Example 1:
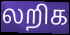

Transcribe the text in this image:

லறிக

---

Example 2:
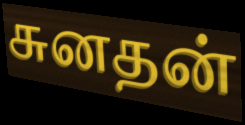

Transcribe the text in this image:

சுனதன்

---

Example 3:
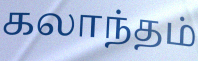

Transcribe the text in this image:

கலாந்தம்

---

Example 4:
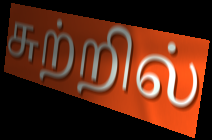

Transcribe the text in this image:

சுற்றில்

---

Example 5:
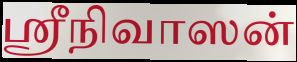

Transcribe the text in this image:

ஸ்ரீநிவாஸன்